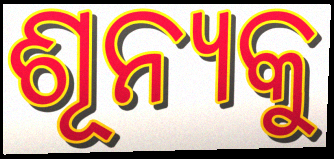
ଶୂନ୍ୟକୁ